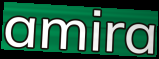
amira